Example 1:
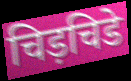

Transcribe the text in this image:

चिड़चिडे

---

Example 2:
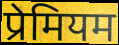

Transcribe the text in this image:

प्रेमियम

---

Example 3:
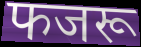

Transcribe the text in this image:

फजरू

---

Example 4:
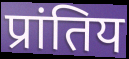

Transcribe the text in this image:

प्रांतिय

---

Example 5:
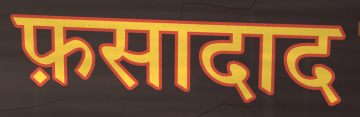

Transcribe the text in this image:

फ़सादाद